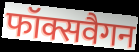
फॉक्सवैगन